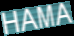
HAMA